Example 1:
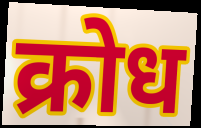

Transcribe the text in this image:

क्रोध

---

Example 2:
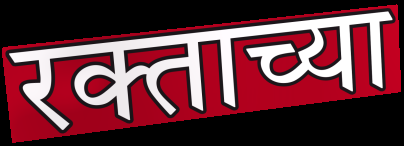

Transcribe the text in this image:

रक्ताच्या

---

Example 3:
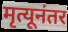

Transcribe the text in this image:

मृत्यूनंतर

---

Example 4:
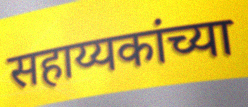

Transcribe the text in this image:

सहाय्यकांच्या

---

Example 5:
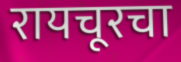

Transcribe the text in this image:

रायचूरचा